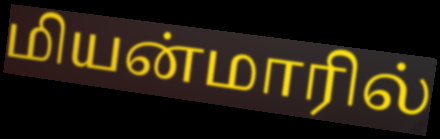
மியன்மாரில்